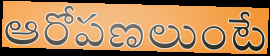
ఆరోపణలుంటే